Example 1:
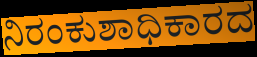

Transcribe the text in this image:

ನಿರಂಕುಶಾಧಿಕಾರದ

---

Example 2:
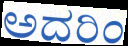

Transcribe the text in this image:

ಅದರಿಂ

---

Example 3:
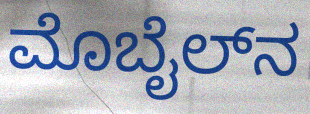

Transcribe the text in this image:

ಮೊಬೈಲ್‌ನ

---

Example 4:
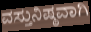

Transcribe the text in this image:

ವಸ್ತುನಿಷ್ಠವಾಗಿ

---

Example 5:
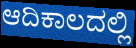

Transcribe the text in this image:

ಆದಿಕಾಲದಲ್ಲಿ